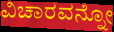
ವಿಚಾರವನ್ನೋ